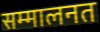
सम्मालनत